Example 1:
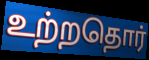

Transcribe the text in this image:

உற்றதொர்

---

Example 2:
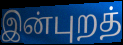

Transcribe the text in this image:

இன்புறத்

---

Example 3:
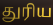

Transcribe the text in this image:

துரிய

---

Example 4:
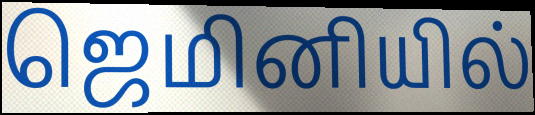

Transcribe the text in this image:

ஜெமினியில்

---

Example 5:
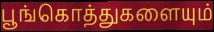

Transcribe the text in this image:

பூங்கொத்துகளையும்